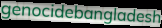
genocidebangladesh